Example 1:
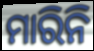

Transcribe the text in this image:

ମାରିନି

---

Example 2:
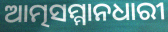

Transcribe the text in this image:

ଆତ୍ମସମ୍ମାନଧାରୀ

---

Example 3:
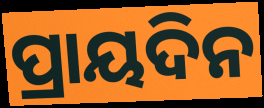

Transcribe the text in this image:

ପ୍ରାୟଦିନ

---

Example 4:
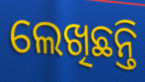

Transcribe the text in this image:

ଲେଖିଛନ୍ତି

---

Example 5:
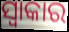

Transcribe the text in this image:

ସ୍ୱାକାର